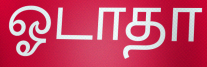
ஓடாதா